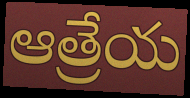
ఆత్రేయ